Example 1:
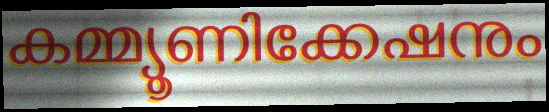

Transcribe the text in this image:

കമ്മ്യൂണിക്കേഷനും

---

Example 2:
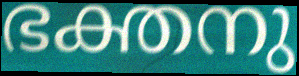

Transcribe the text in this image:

ഭക്തനു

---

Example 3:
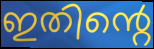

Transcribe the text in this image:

ഇതിന്റെ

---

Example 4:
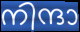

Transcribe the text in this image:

നിന്ദാ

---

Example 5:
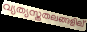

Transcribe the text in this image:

വ്യത്യസ്തതലങ്ങളില്